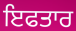
ਇਫਤਾਰ